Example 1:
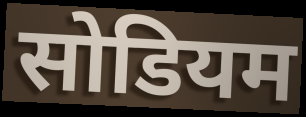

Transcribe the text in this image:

सोडियम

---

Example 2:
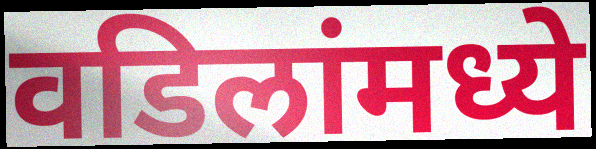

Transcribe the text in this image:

वडिलांमध्ये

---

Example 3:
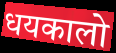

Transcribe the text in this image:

धयकालो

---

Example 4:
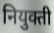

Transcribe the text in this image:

नियुक्ती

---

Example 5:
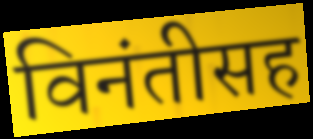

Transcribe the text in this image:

विनंतीसह